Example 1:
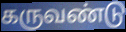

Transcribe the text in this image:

கருவண்டு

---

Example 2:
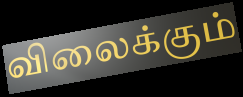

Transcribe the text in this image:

விலைக்கும்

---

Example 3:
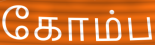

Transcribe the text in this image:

கோம்ப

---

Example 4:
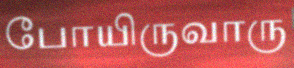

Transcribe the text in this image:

போயிருவாரு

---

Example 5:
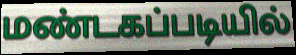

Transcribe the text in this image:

மண்டகப்படியில்